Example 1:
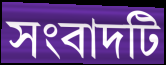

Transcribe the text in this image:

সংবাদটি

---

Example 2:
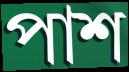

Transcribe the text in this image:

পাশ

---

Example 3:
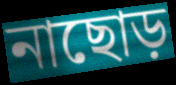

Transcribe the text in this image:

নাছোড়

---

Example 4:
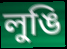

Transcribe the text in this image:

লুঙি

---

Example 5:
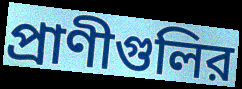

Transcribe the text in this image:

প্রাণীগুলির